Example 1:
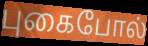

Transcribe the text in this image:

புகைபோல்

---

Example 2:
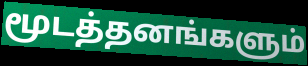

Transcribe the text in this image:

மூடத்தனங்களும்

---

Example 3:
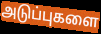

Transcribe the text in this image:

அடுப்புகளை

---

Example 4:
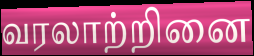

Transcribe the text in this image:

வரலாற்றினை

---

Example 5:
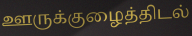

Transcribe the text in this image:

ஊருக்குழைத்திடல்